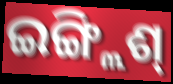
ଇଙ୍ଗ୍ଲିଶ୍